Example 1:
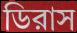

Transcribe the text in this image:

ডিরাস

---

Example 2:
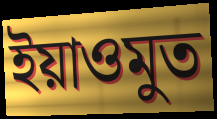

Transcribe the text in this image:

ইয়াওমুত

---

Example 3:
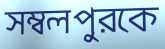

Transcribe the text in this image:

সম্বলপুরকে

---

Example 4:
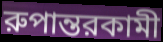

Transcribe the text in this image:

রুপান্তরকামী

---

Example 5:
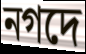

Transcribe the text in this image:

নগদে